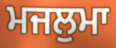
ਮਜਲੁਮਾ